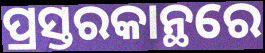
ପ୍ରସ୍ତରକାନ୍ଥରେ